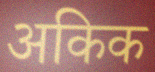
अकिक